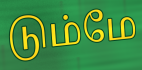
டும்மே